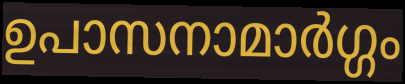
ഉപാസനാമാർഗ്ഗം